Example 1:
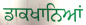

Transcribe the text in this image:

ਡਾਕਖਾਨਿਆਂ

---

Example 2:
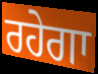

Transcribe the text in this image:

ਰਹੇਗਾ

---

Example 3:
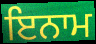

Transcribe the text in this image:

ਇਨਾਮ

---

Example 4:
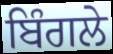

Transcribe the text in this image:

ਬਿੰਗਲੇ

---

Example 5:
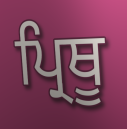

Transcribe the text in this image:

ਪ੍ਰਿਥੂ